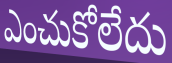
ఎంచుకోలేదు